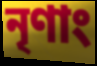
নৃণাং